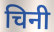
चिनी